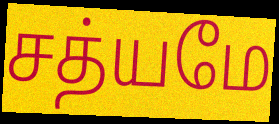
சத்யமே